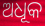
ଅଧୂକ